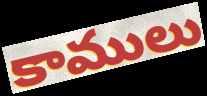
కాములు